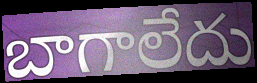
బాగాలేదు